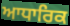
ਆਧਾਰਿਕ